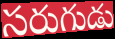
సరుగుడు